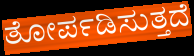
ತೋರ್ಪಡಿಸುತ್ತದೆ